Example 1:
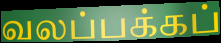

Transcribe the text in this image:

வலப்பக்கப்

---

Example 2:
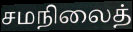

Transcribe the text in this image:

சமநிலைத்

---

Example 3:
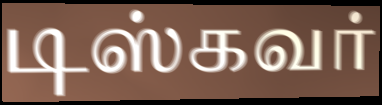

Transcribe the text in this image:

டிஸ்கவர்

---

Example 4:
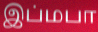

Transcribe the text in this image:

இப்மபா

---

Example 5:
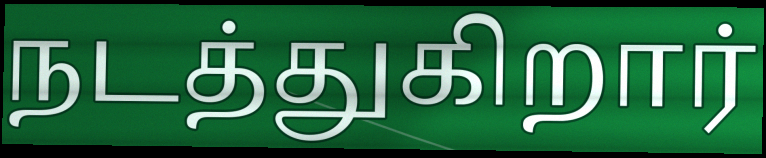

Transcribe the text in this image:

நடத்துகிறார்